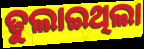
ତୁଲାଇଥିଲା